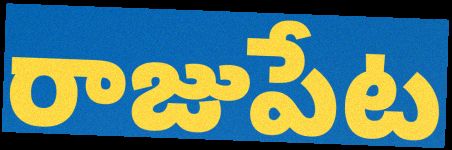
రాజుపేట